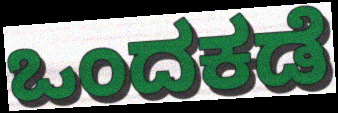
ಒಂದಕಡೆ